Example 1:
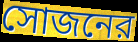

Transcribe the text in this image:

সোজনের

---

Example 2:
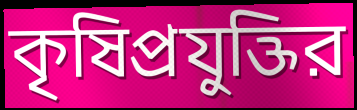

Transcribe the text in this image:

কৃষিপ্রযুক্তির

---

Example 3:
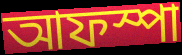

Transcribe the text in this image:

আফস্পা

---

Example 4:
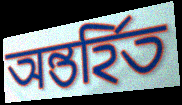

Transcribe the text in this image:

অন্তর্হিত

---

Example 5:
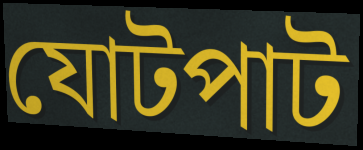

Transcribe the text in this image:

যোটপাট